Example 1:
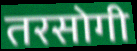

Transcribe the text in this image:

तरसोगी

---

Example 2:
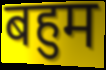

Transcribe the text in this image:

बहुम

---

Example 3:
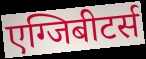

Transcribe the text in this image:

एग्जिबीटर्स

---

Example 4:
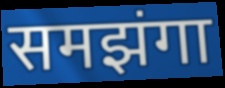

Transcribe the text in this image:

समझंगा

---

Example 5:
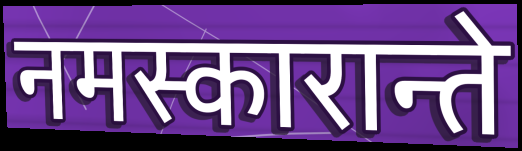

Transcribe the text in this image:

नमस्कारान्ते